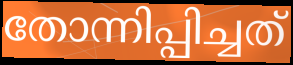
തോന്നിപ്പിച്ചത്